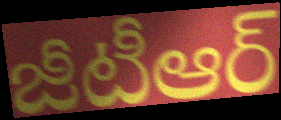
జీటీఆర్